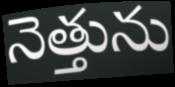
నెత్తును